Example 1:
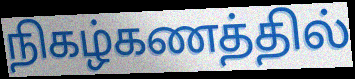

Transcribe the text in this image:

நிகழ்கணத்தில்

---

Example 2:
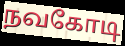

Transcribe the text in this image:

நவகோடி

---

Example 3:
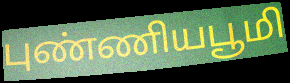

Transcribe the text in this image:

புண்ணியபூமி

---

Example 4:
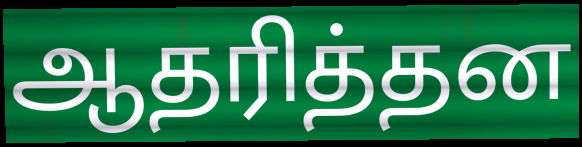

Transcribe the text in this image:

ஆதரித்தன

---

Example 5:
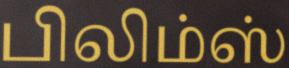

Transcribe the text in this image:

பிலிம்ஸ்